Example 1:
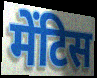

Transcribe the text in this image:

मेंटिस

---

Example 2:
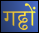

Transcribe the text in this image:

गढ्ढों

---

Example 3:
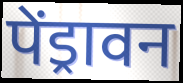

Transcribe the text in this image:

पेंड्रावन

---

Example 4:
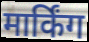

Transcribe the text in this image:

मार्किंग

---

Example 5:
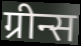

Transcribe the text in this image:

ग्रीन्स